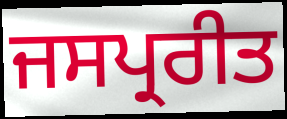
ਜਸਪ੍ਰਰੀਤ